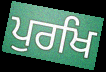
ਪੁਰਖਿ